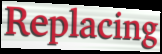
Replacing